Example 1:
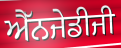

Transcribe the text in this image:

ਐੱਨਜੇਡੀਜੀ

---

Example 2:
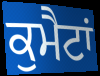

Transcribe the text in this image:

ਕੁਮੈਟਾਂ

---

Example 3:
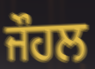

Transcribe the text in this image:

ਜੌਹਲ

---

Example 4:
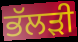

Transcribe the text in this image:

ਭੱਲੜੀ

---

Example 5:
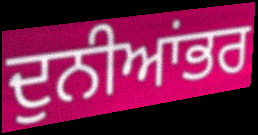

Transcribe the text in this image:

ਦੁਨੀਆਂਭਰ